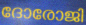
ദോരോജി